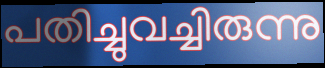
പതിച്ചുവച്ചിരുന്നു